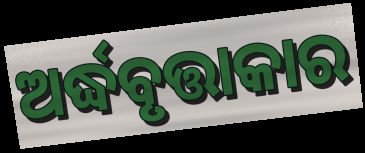
ଅର୍ଦ୍ଧବୃତ୍ତାକାର